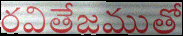
రవితేజముతో